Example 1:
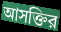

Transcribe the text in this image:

আসক্তির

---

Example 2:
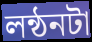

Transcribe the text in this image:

লন্ঠনটা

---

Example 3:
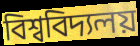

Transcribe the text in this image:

বিশ্ববিদ্যলয়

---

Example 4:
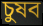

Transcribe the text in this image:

চুষব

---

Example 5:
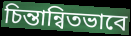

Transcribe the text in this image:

চিন্তান্বিতভাবে